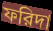
ফরিদা